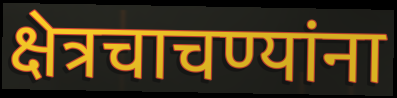
क्षेत्रचाचण्यांना